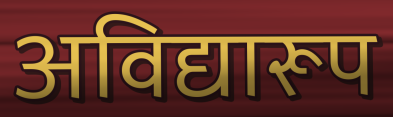
अविद्यारूप